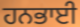
ਹਨਭਾਈ